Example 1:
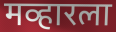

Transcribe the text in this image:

मव्हारला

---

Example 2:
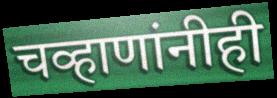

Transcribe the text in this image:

चव्हाणांनीही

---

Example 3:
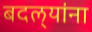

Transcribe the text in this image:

बदल्यांना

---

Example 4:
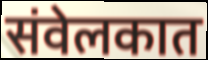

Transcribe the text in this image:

संवेलकात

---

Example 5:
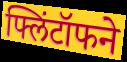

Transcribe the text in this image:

फ्लिंटॉफने